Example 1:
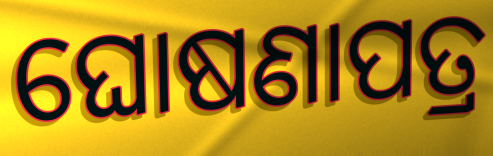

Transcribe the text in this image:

ଘୋଷଣାପତ୍ର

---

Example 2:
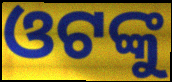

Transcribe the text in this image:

ଓଟଙ୍କୁ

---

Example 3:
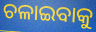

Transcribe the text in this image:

ଚଳାଇବାକୁ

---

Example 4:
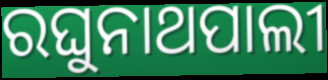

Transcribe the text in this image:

ରଘୁନାଥପାଲୀ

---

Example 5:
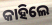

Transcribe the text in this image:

କାହିଲେ